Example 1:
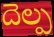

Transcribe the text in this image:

దెల్ప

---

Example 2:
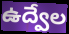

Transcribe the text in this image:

ఉద్వేల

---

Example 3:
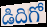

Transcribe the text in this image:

డిదిగో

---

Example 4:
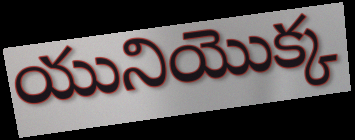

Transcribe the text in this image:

యునియొక్క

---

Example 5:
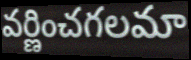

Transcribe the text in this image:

వర్ణించగలమా